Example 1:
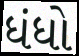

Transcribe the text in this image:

ધંધો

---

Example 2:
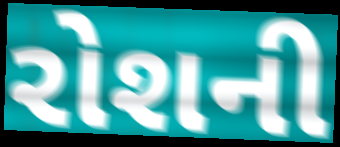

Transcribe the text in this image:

રોશની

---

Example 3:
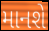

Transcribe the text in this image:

માનશે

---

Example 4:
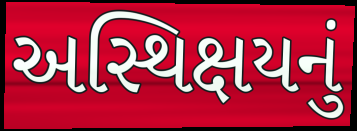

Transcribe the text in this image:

અસ્થિક્ષયનું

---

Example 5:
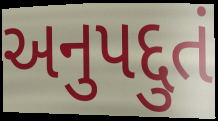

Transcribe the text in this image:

અનુપદ્દુતં